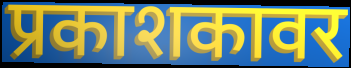
प्रकाशकावर